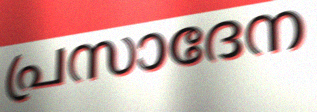
പ്രസാദേന